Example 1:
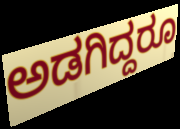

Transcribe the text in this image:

ಅಡಗಿದ್ದರೂ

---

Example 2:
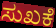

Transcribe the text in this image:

ಸುಖಕೆ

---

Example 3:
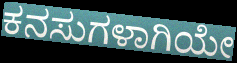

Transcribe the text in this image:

ಕನಸುಗಳಾಗಿಯೇ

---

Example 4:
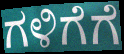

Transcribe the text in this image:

ಗಳಿಗೆಗೆ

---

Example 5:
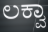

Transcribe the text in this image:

ಲಕ್ವಾ